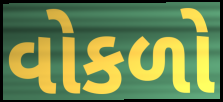
વોકળો